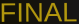
FINAL